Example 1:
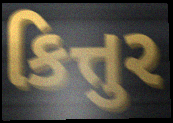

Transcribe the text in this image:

કિત્તુર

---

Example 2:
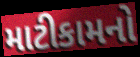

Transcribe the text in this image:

માટીકામનો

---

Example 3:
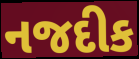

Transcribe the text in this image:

નજદીક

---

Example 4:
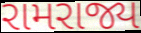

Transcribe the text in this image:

રામરાજ્ય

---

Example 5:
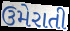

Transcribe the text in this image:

ઉમેરાતી